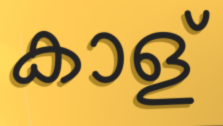
കാള്